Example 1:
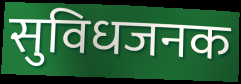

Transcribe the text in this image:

सुविधजनक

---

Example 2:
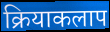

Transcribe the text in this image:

क्रियाकलाप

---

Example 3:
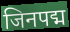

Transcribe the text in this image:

जिनपद्म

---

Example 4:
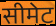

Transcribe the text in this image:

सीमेट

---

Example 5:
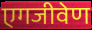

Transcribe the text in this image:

एगजीवेण